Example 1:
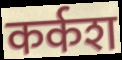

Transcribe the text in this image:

कर्कश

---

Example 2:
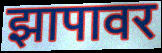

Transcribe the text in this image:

झापावर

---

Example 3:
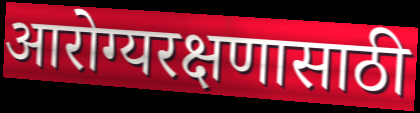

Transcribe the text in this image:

आरोग्यरक्षणासाठी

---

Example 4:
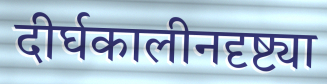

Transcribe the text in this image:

दीर्घकालीनदृष्ट्या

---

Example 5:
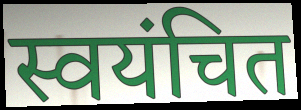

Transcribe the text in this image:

स्वयंचित